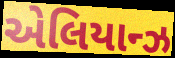
એલિયાન્ઝ